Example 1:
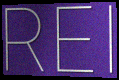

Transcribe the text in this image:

REI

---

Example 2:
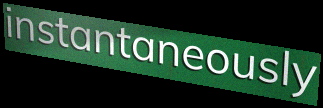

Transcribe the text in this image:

instantaneously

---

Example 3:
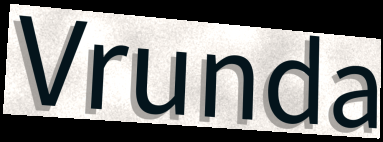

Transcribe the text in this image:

Vrunda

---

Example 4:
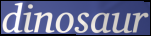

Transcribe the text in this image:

dinosaur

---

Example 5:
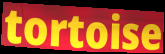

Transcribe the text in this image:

tortoise